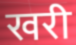
खरी